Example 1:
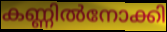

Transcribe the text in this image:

കണ്ണിൽനോക്കി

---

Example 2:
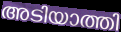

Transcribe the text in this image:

അടിയാത്തി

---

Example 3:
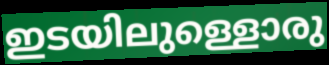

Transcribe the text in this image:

ഇടയിലുള്ളൊരു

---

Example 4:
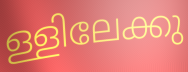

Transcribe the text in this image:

ള്ളിലേക്കു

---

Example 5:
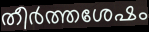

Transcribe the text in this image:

തീർത്തശേഷം